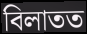
বিলাতত